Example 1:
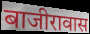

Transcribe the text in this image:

बाजीरावास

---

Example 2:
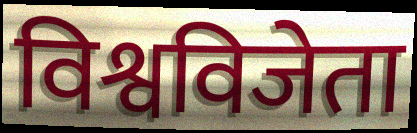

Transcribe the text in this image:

विश्वविजेता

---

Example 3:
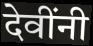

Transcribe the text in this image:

देवींनी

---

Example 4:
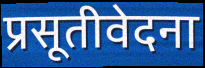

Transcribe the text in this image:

प्रसूतीवेदना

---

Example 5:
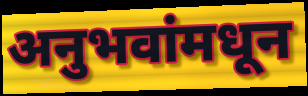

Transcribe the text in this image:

अनुभवांमधून